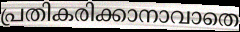
പ്രതികരിക്കാനാവാതെ